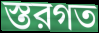
স্তরগত